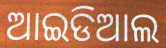
ଆଇଡିଆଲ